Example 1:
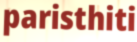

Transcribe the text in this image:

paristhiti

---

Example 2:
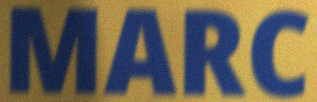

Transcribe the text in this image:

MARC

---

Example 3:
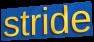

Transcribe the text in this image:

stride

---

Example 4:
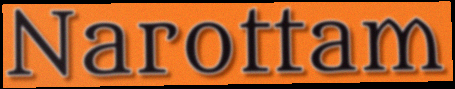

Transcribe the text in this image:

Narottam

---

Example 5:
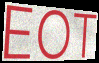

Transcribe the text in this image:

EOT